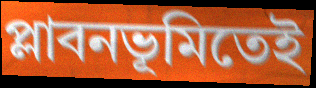
প্লাবনভূমিতেই